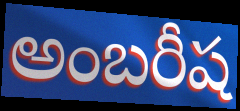
అంబరీష